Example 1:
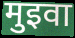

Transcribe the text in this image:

मुइवा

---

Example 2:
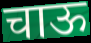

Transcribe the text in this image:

चाऊ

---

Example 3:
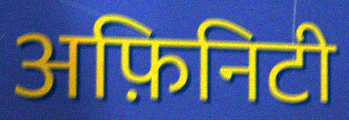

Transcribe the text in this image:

अफ़िनिटी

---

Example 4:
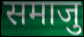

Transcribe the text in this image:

समाजु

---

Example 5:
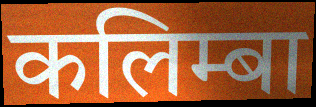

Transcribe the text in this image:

कलिम्बा